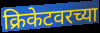
क्रिकेटवरच्या